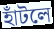
হাঁটলে